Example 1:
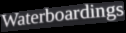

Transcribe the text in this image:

Waterboardings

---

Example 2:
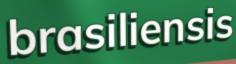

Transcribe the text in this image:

brasiliensis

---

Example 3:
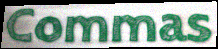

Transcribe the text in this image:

Commas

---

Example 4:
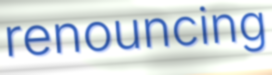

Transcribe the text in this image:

renouncing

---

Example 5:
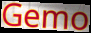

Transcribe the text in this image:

Gemo